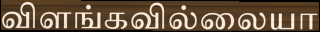
விளங்கவில்லையா